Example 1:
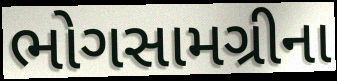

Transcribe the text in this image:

ભોગસામગ્રીના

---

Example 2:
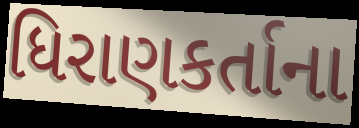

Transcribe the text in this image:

ધિરાણકર્તાના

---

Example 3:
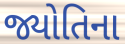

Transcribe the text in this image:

જ્યોતિના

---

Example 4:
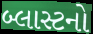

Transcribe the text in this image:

બ્લાસ્ટનો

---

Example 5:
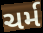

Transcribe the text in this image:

ચર્મ